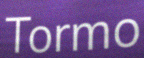
Tormo